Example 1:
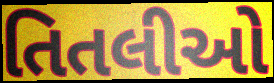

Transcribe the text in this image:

તિતલીઓ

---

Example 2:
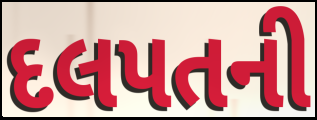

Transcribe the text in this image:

દલપતની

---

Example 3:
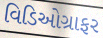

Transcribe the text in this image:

વિડિઓગ્રાફર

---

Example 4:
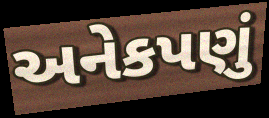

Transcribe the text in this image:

અનેકપણું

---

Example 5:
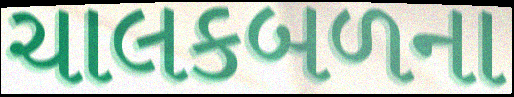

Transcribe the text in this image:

ચાલકબળના